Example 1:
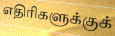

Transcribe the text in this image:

எதிரிகளுக்குக்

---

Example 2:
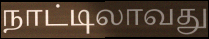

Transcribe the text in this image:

நாட்டிலாவது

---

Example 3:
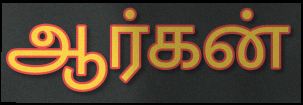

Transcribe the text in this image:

ஆர்கன்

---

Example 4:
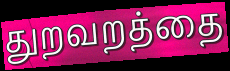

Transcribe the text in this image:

துறவறத்தை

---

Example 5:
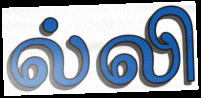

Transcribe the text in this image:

ல்லி